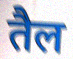
तैल